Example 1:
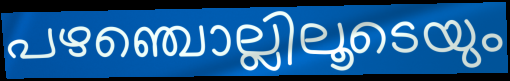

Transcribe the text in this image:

പഴഞ്ചൊല്ലിലൂടെയും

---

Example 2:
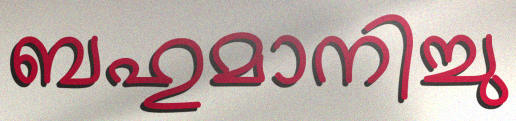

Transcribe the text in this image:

ബഹുമാനിച്ചു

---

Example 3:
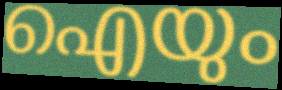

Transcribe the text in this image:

ഐയും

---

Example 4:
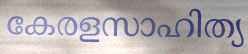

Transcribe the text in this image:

കേരളസാഹിത്യ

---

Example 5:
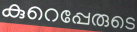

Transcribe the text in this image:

കുറെപ്പേരുടെ